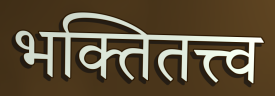
भक्तितत्त्व